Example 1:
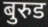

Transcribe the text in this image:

बुरुड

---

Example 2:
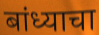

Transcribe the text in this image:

बांध्याचा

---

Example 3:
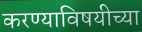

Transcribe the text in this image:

करण्याविषयीच्या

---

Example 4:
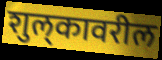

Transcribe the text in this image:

शुल्कावरील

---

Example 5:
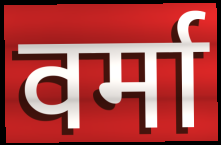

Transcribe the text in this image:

वर्मा